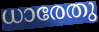
ധാരേതു